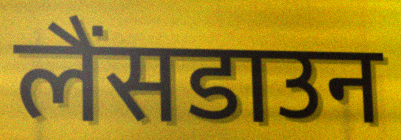
लैंसडाउन